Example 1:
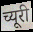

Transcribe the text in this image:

च्यूरी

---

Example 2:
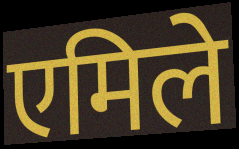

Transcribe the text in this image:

एमिले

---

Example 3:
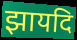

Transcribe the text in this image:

झायदि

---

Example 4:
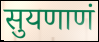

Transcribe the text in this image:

सुयणाणं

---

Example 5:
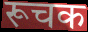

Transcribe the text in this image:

रूचक